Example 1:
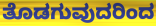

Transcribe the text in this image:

ತೊಡಗುವುದರಿಂದ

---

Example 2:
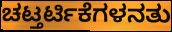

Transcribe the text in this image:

ಚಟ್ತರ್ಟಿಕೆಗಳನತು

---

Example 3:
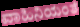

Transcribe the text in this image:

ವಾಹಿನಿಯಂತೆ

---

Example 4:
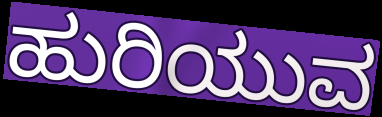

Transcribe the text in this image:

ಹುರಿಯುವ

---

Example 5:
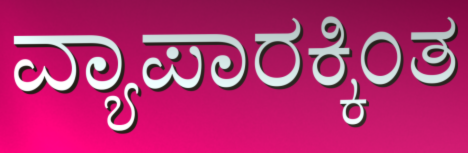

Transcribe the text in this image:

ವ್ಯಾಪಾರಕ್ಕಿಂತ